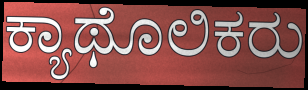
ಕ್ಯಾಥೊಲಿಕರು